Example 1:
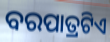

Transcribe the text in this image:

ବରପାତ୍ରଟିଏ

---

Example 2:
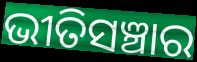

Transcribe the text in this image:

ଭୀତିସଞ୍ଚାର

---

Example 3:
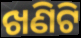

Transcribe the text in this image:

ଖଣିଟି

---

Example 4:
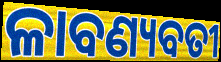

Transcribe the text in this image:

ଳାବଣ୍ୟବତୀ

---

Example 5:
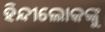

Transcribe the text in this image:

ହିନ୍ଦୀଲୋକଙ୍କୁ